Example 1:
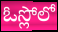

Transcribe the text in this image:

ఓస్లోలో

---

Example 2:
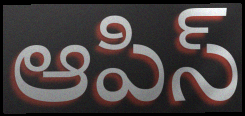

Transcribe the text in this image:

ఆపిస్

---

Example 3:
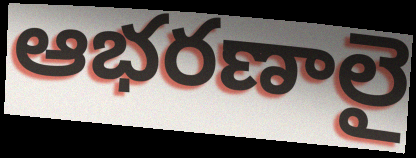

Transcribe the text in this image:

ఆభరణాలై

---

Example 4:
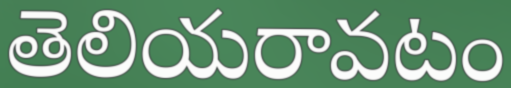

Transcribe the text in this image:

తెలియరావటం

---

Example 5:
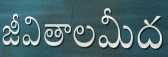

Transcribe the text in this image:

జీవితాలమీద